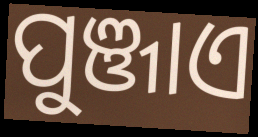
ପୁଞ୍ଜାଏ